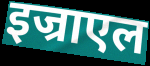
इज्राएल